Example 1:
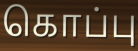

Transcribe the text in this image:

கொப்பு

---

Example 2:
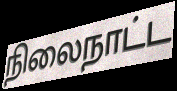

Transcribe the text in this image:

நிலைநாட்ட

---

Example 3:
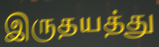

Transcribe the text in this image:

இருதயத்து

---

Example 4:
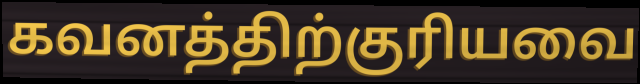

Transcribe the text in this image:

கவனத்திற்குரியவை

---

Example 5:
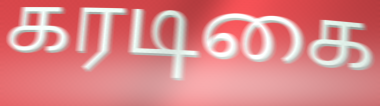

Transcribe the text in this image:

கரடிகை